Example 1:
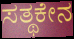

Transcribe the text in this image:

ಸತ್ಥಕೇನ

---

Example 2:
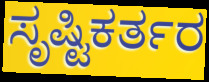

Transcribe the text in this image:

ಸೃಷ್ಟಿಕರ್ತರ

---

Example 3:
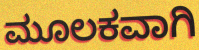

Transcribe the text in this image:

ಮೂಲಕವಾಗಿ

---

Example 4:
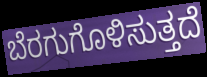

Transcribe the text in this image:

ಬೆರಗುಗೊಳಿಸುತ್ತದೆ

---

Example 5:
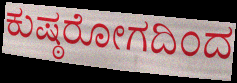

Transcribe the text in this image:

ಕುಷ್ಠರೋಗದಿಂದ